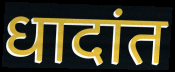
धादांत